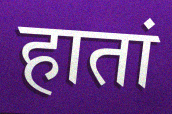
हातां